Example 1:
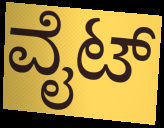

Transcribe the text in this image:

ವೈಟ್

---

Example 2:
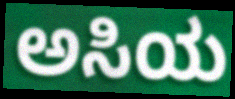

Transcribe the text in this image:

ಅಸಿಯ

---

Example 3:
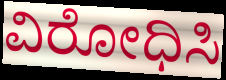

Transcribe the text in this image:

ವಿರೋಧಿಸಿ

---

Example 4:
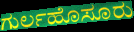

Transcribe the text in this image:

ಗುರ್ಲಹೊಸೂರು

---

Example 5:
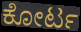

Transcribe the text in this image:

ಕೋರ್ಟ